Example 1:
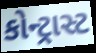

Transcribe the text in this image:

કોન્ટ્રાસ્ટ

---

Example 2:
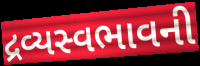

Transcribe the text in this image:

દ્રવ્યસ્વભાવની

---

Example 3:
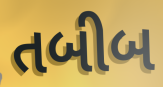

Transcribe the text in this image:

તબીબ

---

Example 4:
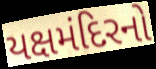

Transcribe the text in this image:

યક્ષમંદિરનો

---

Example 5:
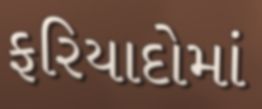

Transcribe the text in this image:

ફરિયાદોમાં